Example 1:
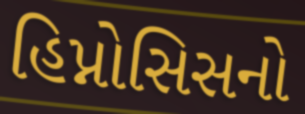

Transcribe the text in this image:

હિપ્નોસિસનો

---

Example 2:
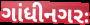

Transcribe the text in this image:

ગાંધીનગરઃ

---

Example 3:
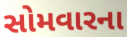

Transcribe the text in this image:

સોમવારના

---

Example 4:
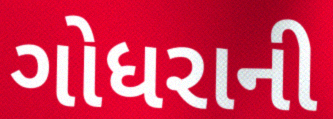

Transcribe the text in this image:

ગોધરાની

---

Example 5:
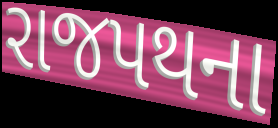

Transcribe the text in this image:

રાજપથના